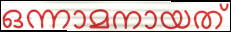
ഒന്നാമനായത്